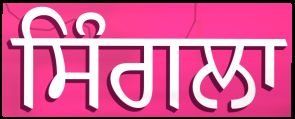
ਸਿੰਗਲਾ